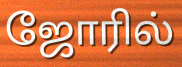
ஜோரில்